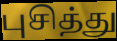
புசித்து